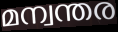
മന്വന്തര